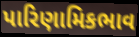
પારિણામિકભાવ